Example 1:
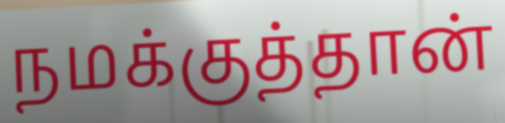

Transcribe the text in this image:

நமக்குத்தான்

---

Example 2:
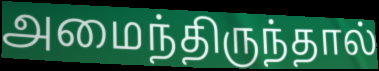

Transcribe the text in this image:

அமைந்திருந்தால்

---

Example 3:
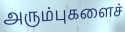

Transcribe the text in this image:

அரும்புகளைச்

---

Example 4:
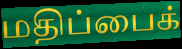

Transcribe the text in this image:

மதிப்பைக்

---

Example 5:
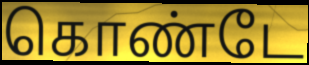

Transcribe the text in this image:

கொண்டே